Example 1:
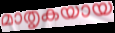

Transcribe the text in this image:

മാതൃകയായ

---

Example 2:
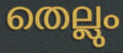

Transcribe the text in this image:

തെല്ലും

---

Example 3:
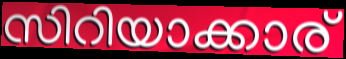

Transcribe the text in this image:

സിറിയാക്കാര്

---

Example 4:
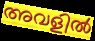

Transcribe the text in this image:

അവളിൽ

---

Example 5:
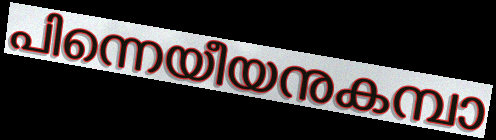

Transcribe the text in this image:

പിന്നെയീയനുകമ്പാ